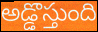
అడ్డొస్తుంది